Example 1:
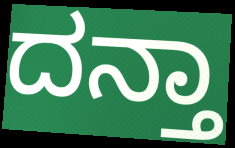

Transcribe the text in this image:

ದನ್ತಾ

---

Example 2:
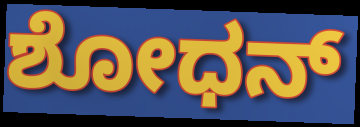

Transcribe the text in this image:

ಶೋಧನ್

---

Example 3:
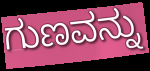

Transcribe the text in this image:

ಗುಣವನ್ನು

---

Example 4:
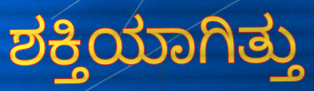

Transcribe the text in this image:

ಶಕ್ತಿಯಾಗಿತ್ತು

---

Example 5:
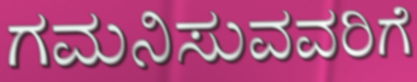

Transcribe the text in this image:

ಗಮನಿಸುವವರಿಗೆ